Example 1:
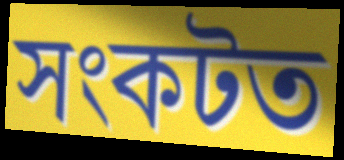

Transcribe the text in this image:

সংকটত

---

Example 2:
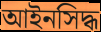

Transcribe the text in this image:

আইনসিদ্ধ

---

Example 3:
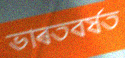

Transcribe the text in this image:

ভাৰতবৰ্ষত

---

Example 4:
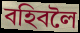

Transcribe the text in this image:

বহিবলৈ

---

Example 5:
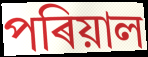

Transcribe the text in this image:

পৰিয়াল